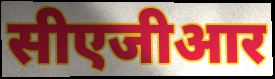
सीएजीआर